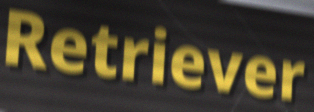
Retriever